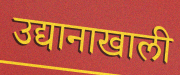
उद्यानाखाली